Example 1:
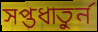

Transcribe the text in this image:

সপ্তধাতুর্ন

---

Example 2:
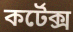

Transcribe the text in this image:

কর্টেক্স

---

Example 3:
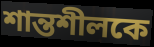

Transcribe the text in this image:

শান্তশীলকে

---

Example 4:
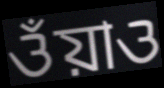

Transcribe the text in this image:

ওঁয়াও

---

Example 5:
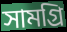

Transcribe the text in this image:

সামগ্রি